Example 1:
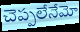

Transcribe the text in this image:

చెప్పలేనేమో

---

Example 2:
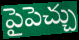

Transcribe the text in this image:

పైపెచ్చు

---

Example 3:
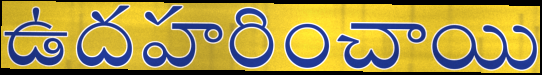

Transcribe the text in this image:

ఉదహరించాయి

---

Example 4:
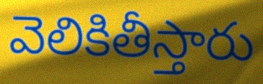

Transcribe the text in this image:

వెలికితీస్తారు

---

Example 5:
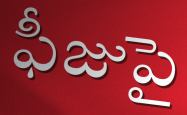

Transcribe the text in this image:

ఫీజుపై